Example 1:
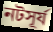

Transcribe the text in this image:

নটসূর্য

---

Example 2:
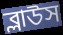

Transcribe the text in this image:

ব্লাউস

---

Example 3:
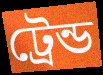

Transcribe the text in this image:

ট্রেন্ড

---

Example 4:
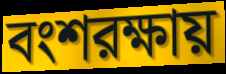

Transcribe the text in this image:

বংশরক্ষায়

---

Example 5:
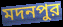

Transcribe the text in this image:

মদনপুর